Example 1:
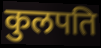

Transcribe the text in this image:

कुलपति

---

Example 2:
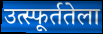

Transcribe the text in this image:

उत्स्फूर्ततेला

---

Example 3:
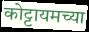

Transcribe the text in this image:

कोट्टायमच्या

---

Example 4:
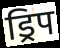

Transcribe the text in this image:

ड्रिप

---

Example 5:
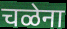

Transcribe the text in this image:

चळेना